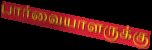
பார்வையாளருக்கு